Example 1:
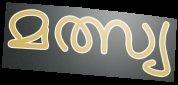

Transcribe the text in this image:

മത്സ്യ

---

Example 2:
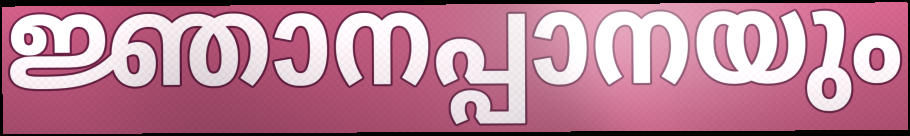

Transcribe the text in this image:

ജ്ഞാനപ്പാനയും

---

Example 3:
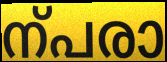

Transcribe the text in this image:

ന്പരാ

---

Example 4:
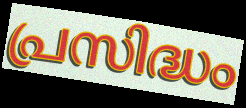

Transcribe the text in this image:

പ്രസിദ്ധം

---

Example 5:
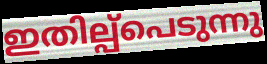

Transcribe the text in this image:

ഇതില്പ്പെടുന്നു